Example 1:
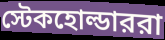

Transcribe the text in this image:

স্টেকহোল্ডাররা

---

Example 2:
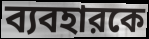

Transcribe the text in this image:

ব্যবহারকে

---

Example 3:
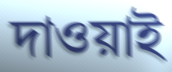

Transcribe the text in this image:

দাওয়াই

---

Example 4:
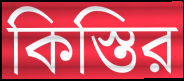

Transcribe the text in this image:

কিস্তির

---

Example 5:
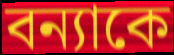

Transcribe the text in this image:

বন্যাকে